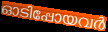
ഓടിപ്പോയവർ